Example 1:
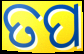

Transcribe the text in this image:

ତପ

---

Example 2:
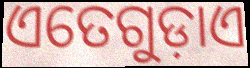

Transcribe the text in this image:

ଏତେଗୁଡ଼ାଏ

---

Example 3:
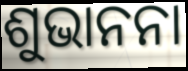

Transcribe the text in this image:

ଶୁଭାନନା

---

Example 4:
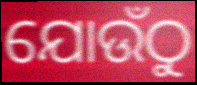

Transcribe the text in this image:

ଯୋଉଁଠୁ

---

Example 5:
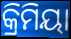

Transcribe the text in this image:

କ୍ରିମିୟା